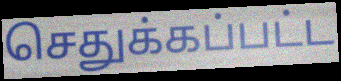
செதுக்கப்பட்ட